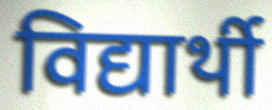
विद्यार्थी